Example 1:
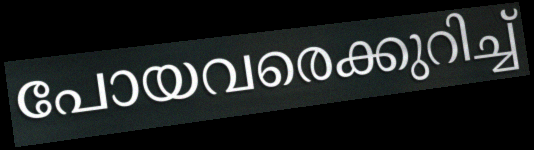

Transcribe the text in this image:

പോയവരെക്കുറിച്ച്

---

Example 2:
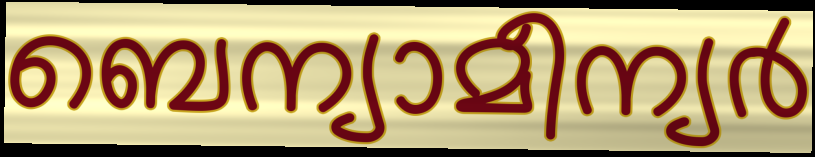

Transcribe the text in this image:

ബെന്യാമീന്യർ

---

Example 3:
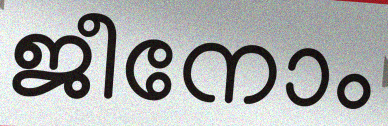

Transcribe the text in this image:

ജീനോം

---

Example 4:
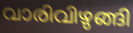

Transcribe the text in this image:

വാരിവിഴുങ്ങി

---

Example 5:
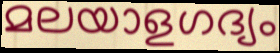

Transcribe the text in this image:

മലയാളഗദ്യം